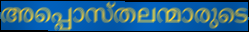
അപ്പൊസ്തലന്മാരുടെ